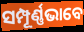
ସମ୍ପୂର୍ଣ୍ଣଭାବେ